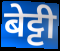
बेट्टी